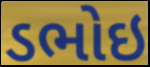
ડભોઇ